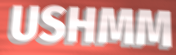
USHMM